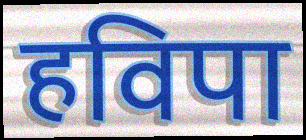
हविपा